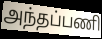
அந்தப்பணி